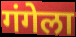
गंगेला